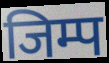
जिम्प